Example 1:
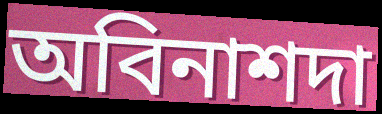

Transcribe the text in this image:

অবিনাশদা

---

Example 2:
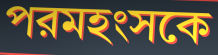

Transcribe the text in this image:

পরমহংসকে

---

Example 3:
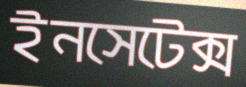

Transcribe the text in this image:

ইনসেটেক্স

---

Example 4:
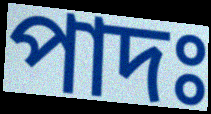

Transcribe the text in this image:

পাদঃ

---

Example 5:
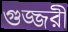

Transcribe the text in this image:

গুজ্জরী